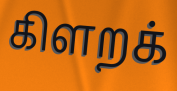
கிளறக்